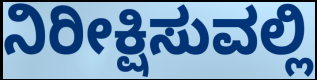
ನಿರೀಕ್ಷಿಸುವಲ್ಲಿ